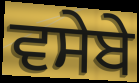
ਵਸੇਬੇ